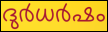
ദുർധർഷം